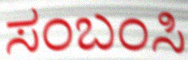
ಸಂಬಂಸಿ